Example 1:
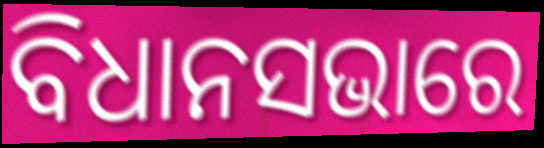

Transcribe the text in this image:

ବିଧାନସଭାରେ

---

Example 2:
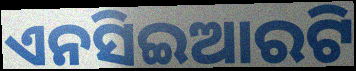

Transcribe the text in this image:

ଏନସିଇଆରଟି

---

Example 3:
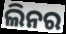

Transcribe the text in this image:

ଲିନର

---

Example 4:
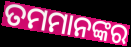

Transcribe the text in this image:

ତମମାନଙ୍କର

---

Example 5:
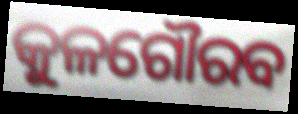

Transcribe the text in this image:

କୁଳଗୌରବ